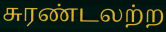
சுரண்டலற்ற